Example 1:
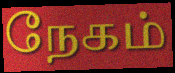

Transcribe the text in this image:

நேகம்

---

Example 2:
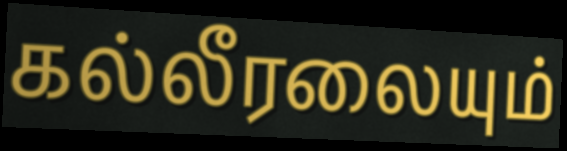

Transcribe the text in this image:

கல்லீரலையும்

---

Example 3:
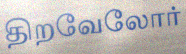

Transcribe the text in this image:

திறவேலோர்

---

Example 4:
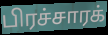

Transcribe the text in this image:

பிரச்சாரக்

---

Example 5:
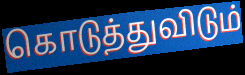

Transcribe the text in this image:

கொடுத்துவிடும்